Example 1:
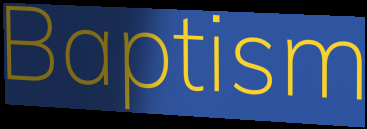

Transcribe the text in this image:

Baptism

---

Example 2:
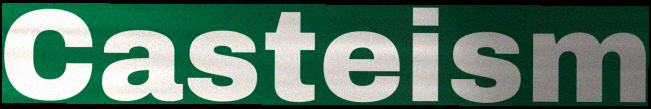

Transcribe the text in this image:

Casteism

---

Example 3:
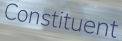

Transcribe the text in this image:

Constituent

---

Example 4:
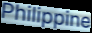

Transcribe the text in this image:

Philippine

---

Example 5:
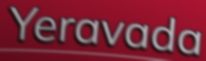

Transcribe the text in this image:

Yeravada